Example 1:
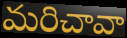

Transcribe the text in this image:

మరిచావా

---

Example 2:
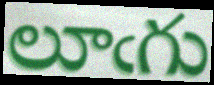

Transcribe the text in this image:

లూఁగు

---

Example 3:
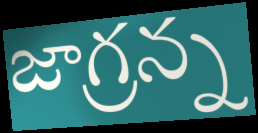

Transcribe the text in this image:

జాగ్రన్న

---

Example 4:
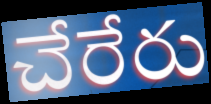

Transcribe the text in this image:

చేరేరు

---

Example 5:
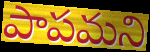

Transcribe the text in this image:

పాపమని